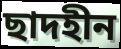
ছাদহীন